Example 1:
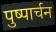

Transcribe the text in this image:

पुष्पार्चन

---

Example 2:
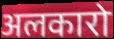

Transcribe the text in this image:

अलकारो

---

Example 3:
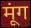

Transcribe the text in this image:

मूंग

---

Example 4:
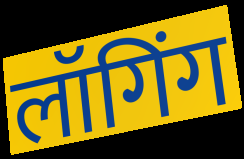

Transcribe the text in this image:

लॉगिंग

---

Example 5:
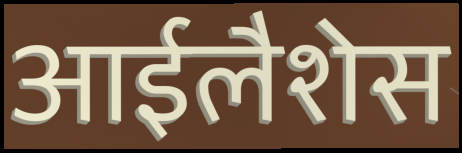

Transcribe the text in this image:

आईलैशेस